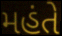
મહંતે